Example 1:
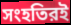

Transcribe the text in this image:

সংহতিরই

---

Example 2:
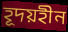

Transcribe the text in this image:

হূদয়হীন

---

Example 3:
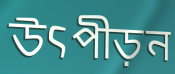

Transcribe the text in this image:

উৎপীড়ন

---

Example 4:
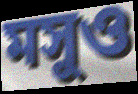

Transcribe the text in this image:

মসুও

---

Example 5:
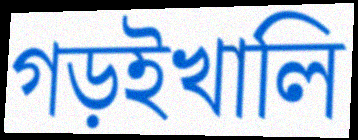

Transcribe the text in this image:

গড়ইখালি